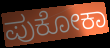
ಪುಕೋಕಾ